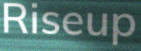
Riseup